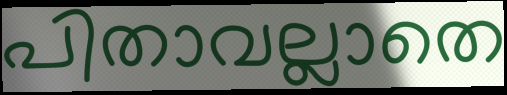
പിതാവല്ലാതെ